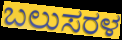
ಬಲುಸರಳ